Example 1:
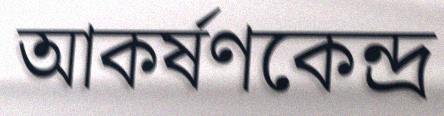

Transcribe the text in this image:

আকর্ষণকেন্দ্র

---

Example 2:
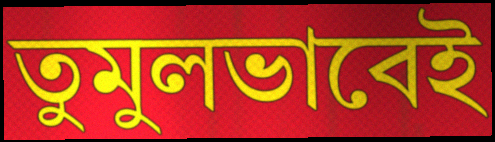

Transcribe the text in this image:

তুমুলভাবেই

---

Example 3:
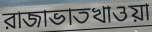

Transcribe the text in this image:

রাজাভাতখাওয়া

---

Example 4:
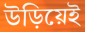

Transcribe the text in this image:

উড়িয়েই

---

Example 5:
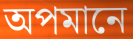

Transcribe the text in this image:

অপমানে